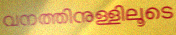
വനത്തിനുള്ളിലൂടെ